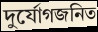
দুর্যোগজনিত